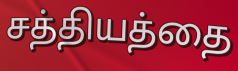
சத்தியத்தை